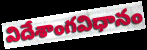
విదేశాంగవిధానం